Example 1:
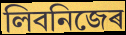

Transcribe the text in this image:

লিবনিজেৰ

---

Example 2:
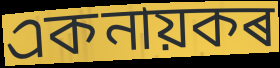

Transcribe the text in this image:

একনায়কৰ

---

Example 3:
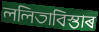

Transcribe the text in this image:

ললিতাবিস্তাৰ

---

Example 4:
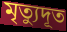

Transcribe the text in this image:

মৃত্যুদূত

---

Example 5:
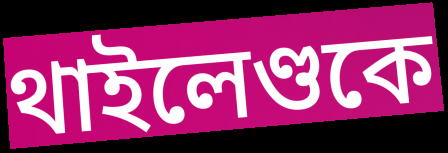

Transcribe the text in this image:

থাইলেণ্ডকে